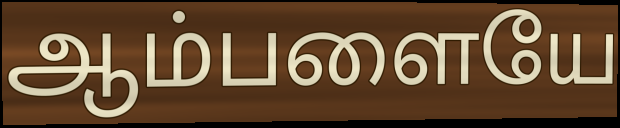
ஆம்பளையே